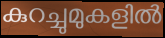
കുറച്ചുമുകളിൽ